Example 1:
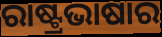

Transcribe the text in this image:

ରାଷ୍ଟ୍ରଭାଷାର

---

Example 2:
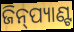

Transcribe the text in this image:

ଜିନ୍‍ପ୍ୟାଣ୍ଟ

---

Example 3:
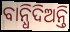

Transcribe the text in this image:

ବାନ୍ଧିଦିଅନ୍ତି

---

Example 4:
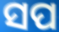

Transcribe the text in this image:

ସପ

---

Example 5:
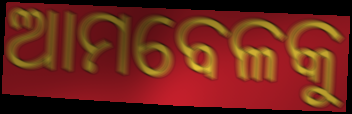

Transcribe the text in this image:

ଆମବେଳକୁ